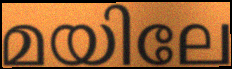
മയിലേ